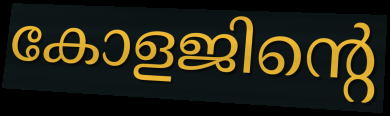
കോളജിന്റെ